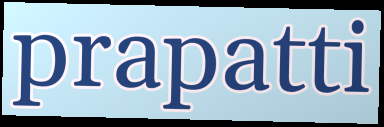
prapatti